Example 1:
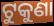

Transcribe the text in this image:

ଟୁକୁଣା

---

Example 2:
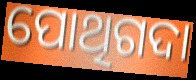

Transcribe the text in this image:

ପୋଥିଗଦା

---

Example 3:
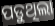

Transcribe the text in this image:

ପଡୁଥିଲା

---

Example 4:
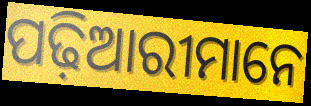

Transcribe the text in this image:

ପଢ଼ିଆରୀମାନେ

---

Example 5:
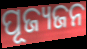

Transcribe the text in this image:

ପୂଜ୍ୟଜନ